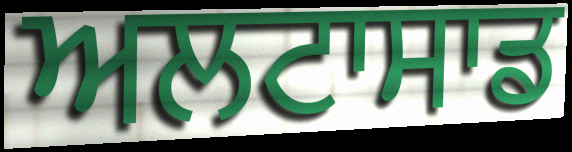
ਅਲਟਾਸਾਡ